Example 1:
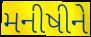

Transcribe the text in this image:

મનીષીને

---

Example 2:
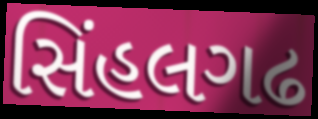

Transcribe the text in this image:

સિંહલગઢ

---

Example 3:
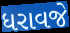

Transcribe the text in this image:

ધરાવજે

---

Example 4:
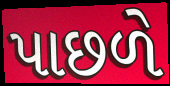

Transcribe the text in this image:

પાછળે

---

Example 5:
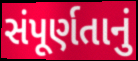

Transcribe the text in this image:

સંપૂર્ણતાનું